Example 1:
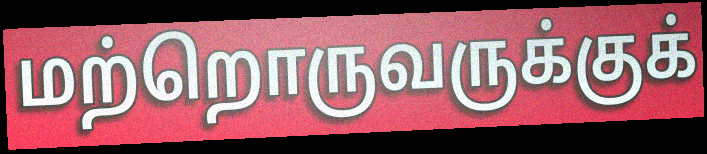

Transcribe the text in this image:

மற்றொருவருக்குக்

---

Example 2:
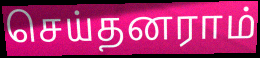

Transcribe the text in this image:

செய்தனராம்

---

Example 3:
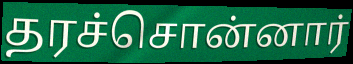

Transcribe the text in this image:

தரச்சொன்னார்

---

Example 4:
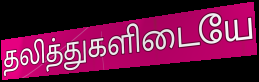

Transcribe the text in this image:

தலித்துகளிடையே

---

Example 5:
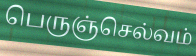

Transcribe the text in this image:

பெருஞ்செல்வம்